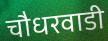
चौधरवाडी